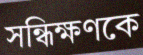
সন্ধিক্ষণকে